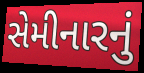
સેમીનારનું